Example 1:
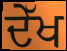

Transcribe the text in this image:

ਦੇੱਖ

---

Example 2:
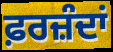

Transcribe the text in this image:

ਫ਼ਰਜ਼ੰਦਾਂ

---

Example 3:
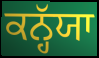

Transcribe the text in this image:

ਕਨ੍ਹੱਯਾ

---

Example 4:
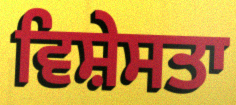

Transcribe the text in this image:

ਵਿਸ਼ੇਸਤਾ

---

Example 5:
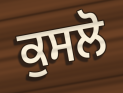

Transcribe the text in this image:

ਕੁਸਲੋ